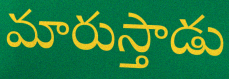
మారుస్తాడు